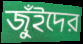
জুঁইদের